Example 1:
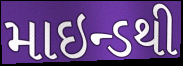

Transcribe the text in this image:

માઇન્ડથી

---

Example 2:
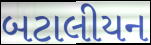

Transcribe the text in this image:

બટાલીયન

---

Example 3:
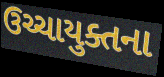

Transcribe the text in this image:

ઉચ્ચાયુક્તના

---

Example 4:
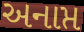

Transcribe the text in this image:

અનાપ્ત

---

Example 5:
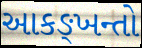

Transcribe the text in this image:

આકઙ્ખન્તો